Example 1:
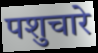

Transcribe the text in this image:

पशुचारे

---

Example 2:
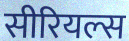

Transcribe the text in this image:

सीरियल्स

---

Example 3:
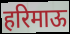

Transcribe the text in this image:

हरिमाऊ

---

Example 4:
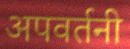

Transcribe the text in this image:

अपवर्तनी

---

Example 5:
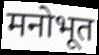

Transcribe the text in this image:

मनोभूत